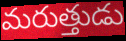
మరుత్తుడు